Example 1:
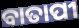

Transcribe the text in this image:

ବାତାପୀ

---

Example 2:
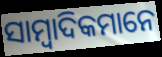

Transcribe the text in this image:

ସାମ୍ବାଦିକମାନେ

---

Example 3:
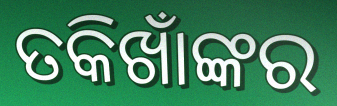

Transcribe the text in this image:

ତକିଖାଁଙ୍କର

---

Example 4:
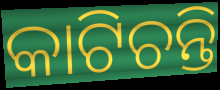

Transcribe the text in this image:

କାଟିଚନ୍ତି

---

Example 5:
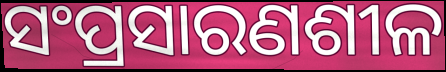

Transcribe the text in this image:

ସଂପ୍ରସାରଣଶୀଳ